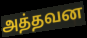
அத்தவன